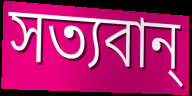
সত্যবান্